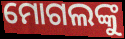
ମୋଗଲଙ୍କୁ